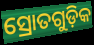
ସ୍ରୋତଗୁଡ଼ିକ